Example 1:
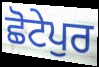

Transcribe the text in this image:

ਛੋਟੇਪੁਰ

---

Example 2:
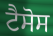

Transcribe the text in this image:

ਟੈਸੋਸ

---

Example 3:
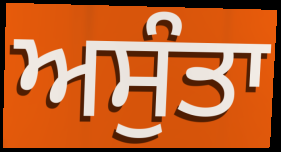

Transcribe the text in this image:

ਅਸੁੰਤਾ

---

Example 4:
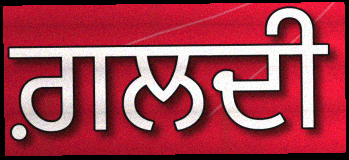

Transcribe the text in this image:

ਗ਼ਲਦੀ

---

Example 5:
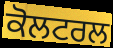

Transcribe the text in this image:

ਕੋਲਟਰਲ